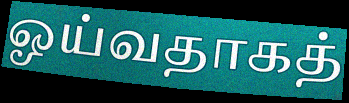
ஓய்வதாகத்